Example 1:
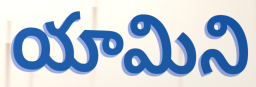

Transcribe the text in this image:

యామిని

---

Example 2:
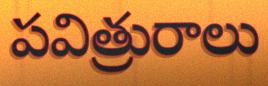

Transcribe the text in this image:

పవిత్రురాలు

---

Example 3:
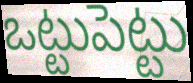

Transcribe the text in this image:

ఒట్టుపెట్టు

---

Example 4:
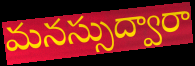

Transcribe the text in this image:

మనస్సుద్వారా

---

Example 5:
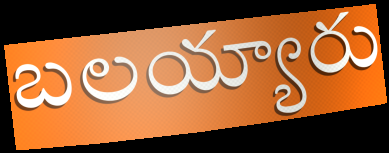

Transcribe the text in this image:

బలయ్యారు